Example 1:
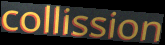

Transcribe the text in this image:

collission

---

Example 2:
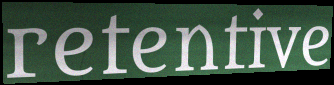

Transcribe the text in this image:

retentive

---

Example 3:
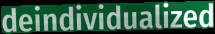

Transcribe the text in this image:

deindividualized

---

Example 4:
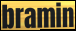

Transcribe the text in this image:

bramin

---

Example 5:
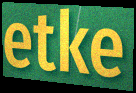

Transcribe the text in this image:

etke